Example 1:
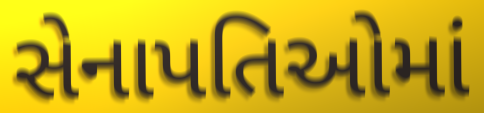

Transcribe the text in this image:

સેનાપતિઓમાં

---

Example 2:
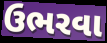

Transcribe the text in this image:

ઉભરવા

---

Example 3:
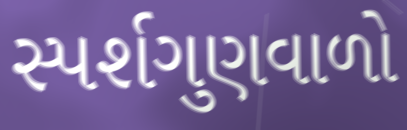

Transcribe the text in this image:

સ્પર્શગુણવાળો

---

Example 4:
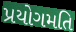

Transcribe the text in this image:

પ્રયોગમતિ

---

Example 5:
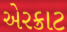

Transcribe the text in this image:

એરક્રાટ